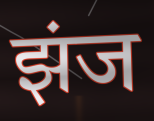
झंज